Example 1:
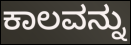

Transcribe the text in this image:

ಕಾಲವನ್ನು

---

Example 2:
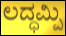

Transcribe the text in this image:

ಲದ್ಧಮ್ಪಿ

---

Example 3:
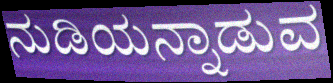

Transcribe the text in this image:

ನುಡಿಯನ್ನಾಡುವ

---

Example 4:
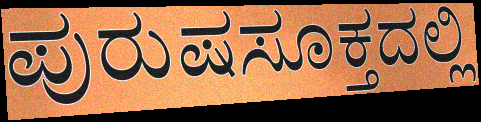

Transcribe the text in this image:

ಪುರುಷಸೂಕ್ತದಲ್ಲಿ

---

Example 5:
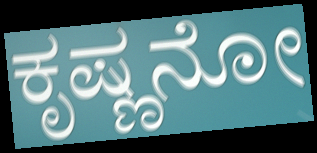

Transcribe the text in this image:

ಕೃಷ್ಣನೋ